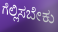
ಗೆಲ್ಲಿಸಬೇಕು